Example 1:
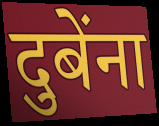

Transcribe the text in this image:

दुबेंना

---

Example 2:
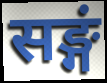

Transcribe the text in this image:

सङ्गं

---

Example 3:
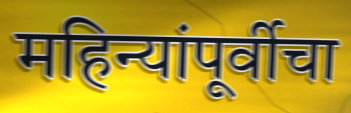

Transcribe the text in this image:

महिन्यांपूर्वीचा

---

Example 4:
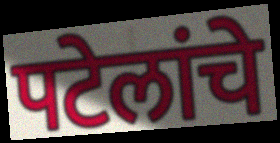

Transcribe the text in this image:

पटेलांचे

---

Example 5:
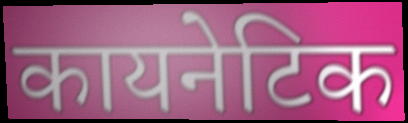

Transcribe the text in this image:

कायनेटिक